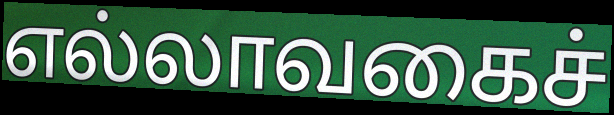
எல்லாவகைச்